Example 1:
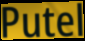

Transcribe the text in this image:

Putel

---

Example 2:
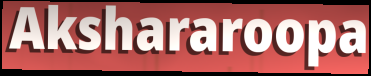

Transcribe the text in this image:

Akshararoopa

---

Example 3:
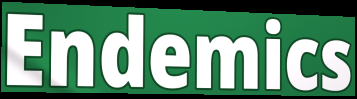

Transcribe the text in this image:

Endemics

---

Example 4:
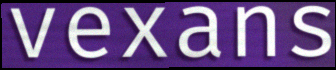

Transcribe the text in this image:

vexans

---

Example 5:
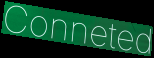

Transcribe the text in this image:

Conneted